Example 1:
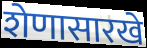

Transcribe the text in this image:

शेणासारखे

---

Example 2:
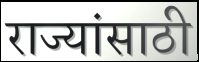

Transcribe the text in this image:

राज्यांसाठी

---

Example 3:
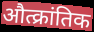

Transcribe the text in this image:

औत्क्रांतिक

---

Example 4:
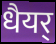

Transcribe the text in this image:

धैयर्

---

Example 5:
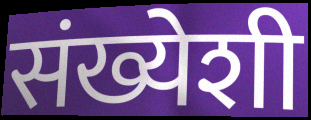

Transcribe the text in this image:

संख्येशी